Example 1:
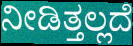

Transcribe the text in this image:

ನೀಡಿತ್ತಲ್ಲದೆ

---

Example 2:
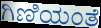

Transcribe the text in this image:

ಗಿಣಿಯಂತೆ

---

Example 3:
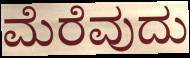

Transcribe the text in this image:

ಮೆರೆವುದು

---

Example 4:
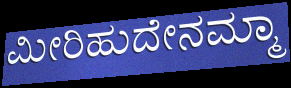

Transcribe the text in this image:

ಮೀರಿಹುದೇನಮ್ಮಾ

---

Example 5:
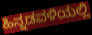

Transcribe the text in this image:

ಹಿನ್ನಡವಳಿಯಲ್ಲಿ